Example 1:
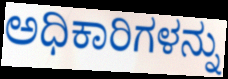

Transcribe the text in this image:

ಅಧಿಕಾರಿಗಳನ್ನು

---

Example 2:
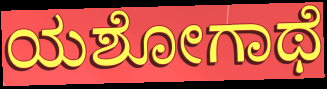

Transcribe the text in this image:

ಯಶೋಗಾಥೆ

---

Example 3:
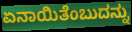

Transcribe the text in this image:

ಏನಾಯಿತೆಂಬುದನ್ನು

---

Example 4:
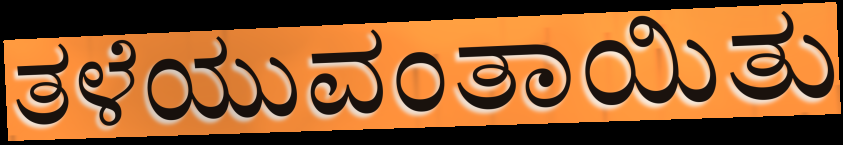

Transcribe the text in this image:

ತಳೆಯುವಂತಾಯಿತು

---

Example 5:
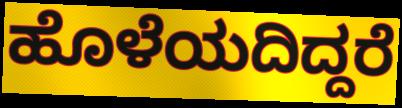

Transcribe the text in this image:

ಹೊಳೆಯದಿದ್ದರೆ